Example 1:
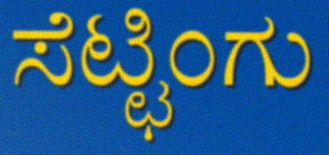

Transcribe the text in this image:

ಸೆಟ್ಟಿಂಗು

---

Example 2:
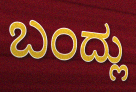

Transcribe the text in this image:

ಬಂದ್ಲು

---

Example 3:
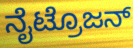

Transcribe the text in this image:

ನೈಟ್ರೊಜನ್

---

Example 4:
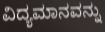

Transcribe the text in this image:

ವಿದ್ಯಮಾನವನ್ನು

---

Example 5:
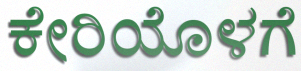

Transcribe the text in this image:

ಕೇರಿಯೊಳಗೆ